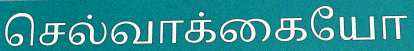
செல்வாக்கையோ